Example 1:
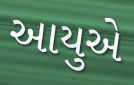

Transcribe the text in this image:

આયુએ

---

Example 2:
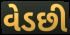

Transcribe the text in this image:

વેડછી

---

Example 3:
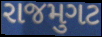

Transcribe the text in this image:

રાજમુગટ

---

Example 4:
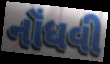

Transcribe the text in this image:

નૉંધવી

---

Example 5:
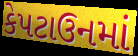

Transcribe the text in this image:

કેપટાઉનમાં